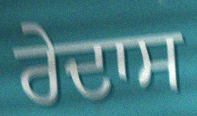
ਰੇਦਾਸ